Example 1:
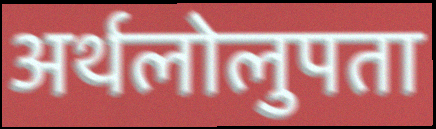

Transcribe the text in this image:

अर्थलोलुपता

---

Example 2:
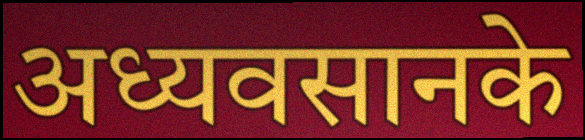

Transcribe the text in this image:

अध्यवसानके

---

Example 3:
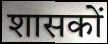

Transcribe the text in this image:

शासकों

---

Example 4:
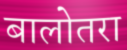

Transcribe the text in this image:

बालोतरा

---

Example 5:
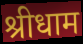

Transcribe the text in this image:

श्रीधाम